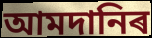
আমদানিৰ